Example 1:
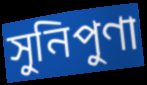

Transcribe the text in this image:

সুনিপুণা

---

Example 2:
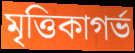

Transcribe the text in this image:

মৃত্তিকাগর্ভ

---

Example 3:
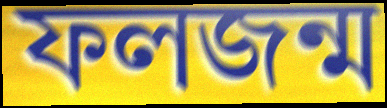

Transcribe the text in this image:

ফলজন্ম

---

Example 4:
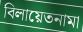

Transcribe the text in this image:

বিলায়েতনামা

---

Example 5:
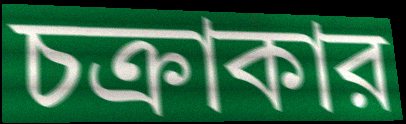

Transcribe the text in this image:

চক্রাকার